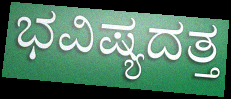
ಭವಿಷ್ಯದತ್ತ